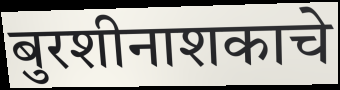
बुरशीनाशकाचे